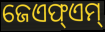
ଜେଏଫ୍ଏମ୍